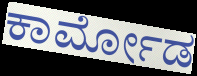
ಕಾರ್ಮೋಡ